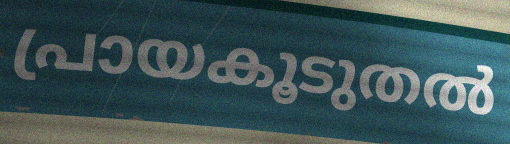
പ്രായകൂടുതൽ